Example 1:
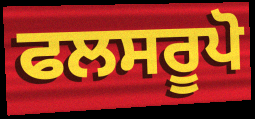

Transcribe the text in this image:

ਫਲਸਰੂਪੋ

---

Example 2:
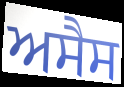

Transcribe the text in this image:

ਅਸੈਸ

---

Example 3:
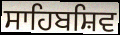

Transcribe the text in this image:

ਸਾਹਿਬਸ਼ਿਵ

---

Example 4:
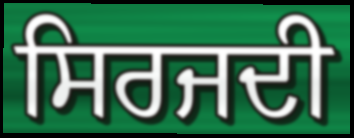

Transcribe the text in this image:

ਸਿਰਜਦੀ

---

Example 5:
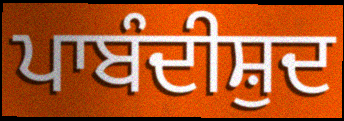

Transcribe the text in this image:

ਪਾਬੰਦੀਸ਼ੁਦ